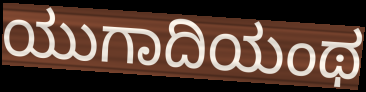
ಯುಗಾದಿಯಂಥ